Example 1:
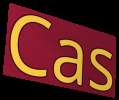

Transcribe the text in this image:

Cas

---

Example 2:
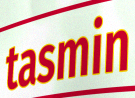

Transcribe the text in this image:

tasmin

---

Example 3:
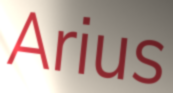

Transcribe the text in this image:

Arius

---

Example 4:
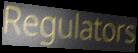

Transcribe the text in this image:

Regulators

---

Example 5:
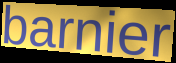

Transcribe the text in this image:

barnier